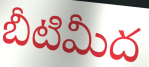
బీటిమీద